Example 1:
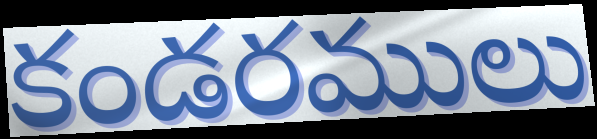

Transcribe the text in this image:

కండరములు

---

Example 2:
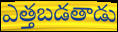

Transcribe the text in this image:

ఎత్తబడతాడు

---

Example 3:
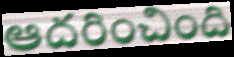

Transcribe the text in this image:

ఆదరించింది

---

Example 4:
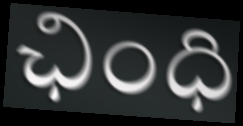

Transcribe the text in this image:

ఛింధి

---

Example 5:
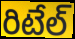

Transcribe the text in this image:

రిటేల్